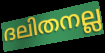
ദലിതനല്ല